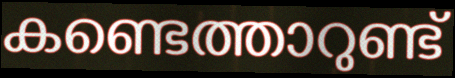
കണ്ടെത്താറുണ്ട്